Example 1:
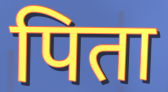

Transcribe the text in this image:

पिता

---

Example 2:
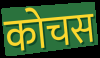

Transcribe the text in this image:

कोचस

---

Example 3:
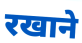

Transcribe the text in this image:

रखाने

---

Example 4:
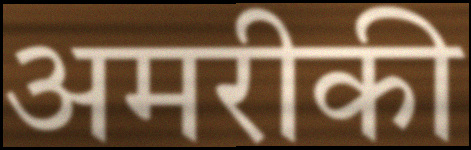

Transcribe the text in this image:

अमरीकी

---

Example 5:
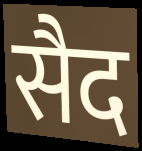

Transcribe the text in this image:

सैद